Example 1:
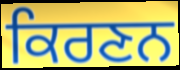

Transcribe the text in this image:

ਕਿਰਣਨ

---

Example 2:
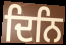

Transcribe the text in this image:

ਦਿਨਿ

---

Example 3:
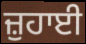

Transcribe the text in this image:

ਜ਼ੁਹਾਈ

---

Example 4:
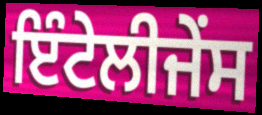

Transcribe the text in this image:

ਇੰਟੇਲੀਜੇੰਸ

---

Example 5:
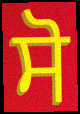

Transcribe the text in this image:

ਸੋ